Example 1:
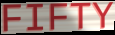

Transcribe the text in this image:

FIFTY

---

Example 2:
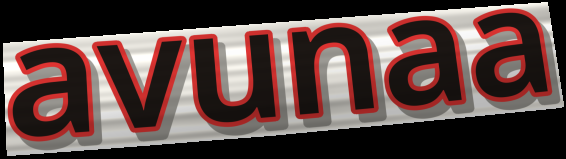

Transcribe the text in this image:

avunaa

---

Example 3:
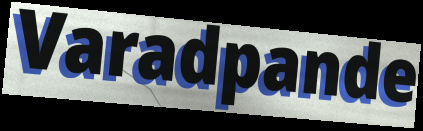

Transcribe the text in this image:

Varadpande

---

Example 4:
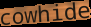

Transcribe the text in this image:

cowhide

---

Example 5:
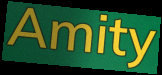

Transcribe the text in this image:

Amity